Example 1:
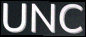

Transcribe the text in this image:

UNC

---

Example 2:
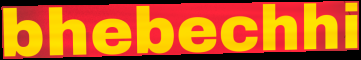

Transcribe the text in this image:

bhebechhi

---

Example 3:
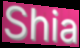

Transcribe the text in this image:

Shia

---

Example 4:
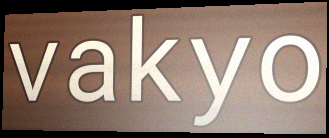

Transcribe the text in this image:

vakyo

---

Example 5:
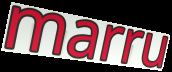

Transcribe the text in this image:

marru